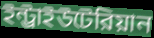
ইন্ট্রাইউটেরিয়ান